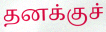
தனக்குச்